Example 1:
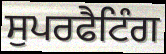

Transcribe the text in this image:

ਸੁਪਰਫੈਟਿੰਗ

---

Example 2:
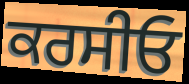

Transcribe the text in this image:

ਕਰਸੀਓ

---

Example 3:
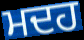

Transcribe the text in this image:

ਮਦਹ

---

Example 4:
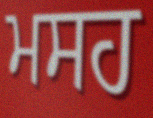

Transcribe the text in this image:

ਮਸਹ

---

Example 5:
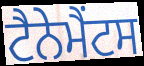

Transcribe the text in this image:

ਟੈਨੇਮੈਂਟਸ